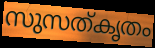
സുസത്കൃതം